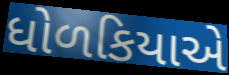
ધોળકિયાએ